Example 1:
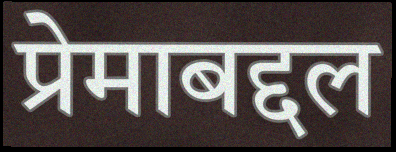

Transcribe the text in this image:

प्रेमाबद्दल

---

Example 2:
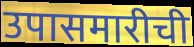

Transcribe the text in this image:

उपासमारीची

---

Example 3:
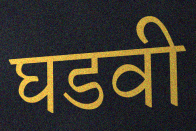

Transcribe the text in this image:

घडवी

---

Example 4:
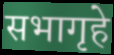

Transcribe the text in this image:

सभागृहे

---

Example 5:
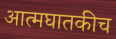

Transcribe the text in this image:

आत्मघातकीच